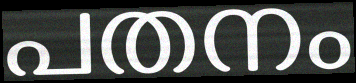
പതനം